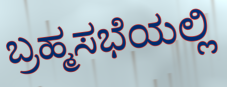
ಬ್ರಹ್ಮಸಭೆಯಲ್ಲಿ